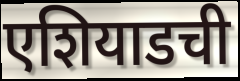
एशियाडची